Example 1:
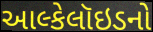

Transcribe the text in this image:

આલ્કેલૉઇડનો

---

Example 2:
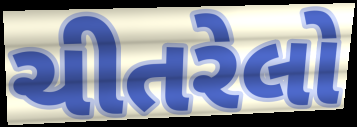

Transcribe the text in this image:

ચીતરેલો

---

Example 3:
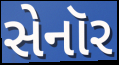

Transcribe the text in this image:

સેનૉર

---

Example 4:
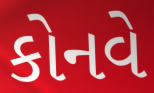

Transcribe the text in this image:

કોનવે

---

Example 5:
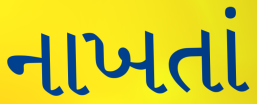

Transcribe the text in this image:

નાખતાં